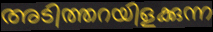
അടിത്തറയിളക്കുന്ന